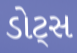
ડોટ્સ